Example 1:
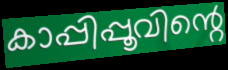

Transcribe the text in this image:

കാപ്പിപ്പൂവിന്റെ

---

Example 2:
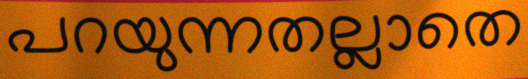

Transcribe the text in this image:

പറയുന്നതല്ലാതെ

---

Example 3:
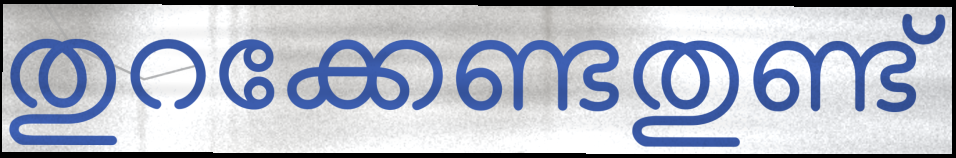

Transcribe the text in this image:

തുറക്കേണ്ടതുണ്ട്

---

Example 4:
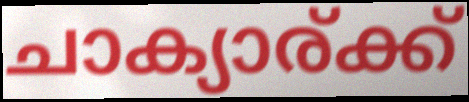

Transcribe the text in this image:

ചാക്യാര്ക്ക്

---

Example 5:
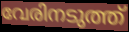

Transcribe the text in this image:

വേരിനടുത്ത്